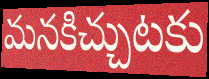
మనకిచ్చుటకు